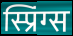
स्प्रिंग्स